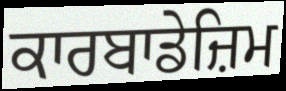
ਕਾਰਬਾਡੇਜ਼ਿਮ